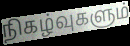
நிகழ்வுகளும்